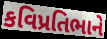
કવિપ્રતિભાને